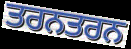
ਤਰਨਤਰਨ